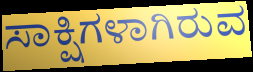
ಸಾಕ್ಷಿಗಳಾಗಿರುವ